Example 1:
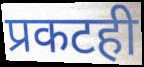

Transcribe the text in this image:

प्रकटही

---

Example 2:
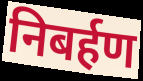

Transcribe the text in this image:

निबर्हण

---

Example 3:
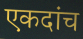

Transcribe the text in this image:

एकदांच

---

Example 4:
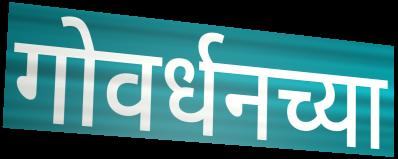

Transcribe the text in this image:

गोवर्धनच्या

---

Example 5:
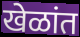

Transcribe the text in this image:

खेळांत